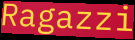
Ragazzi